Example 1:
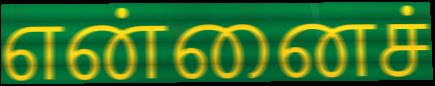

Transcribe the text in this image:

என்னைச்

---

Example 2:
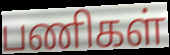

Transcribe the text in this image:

பணிகள்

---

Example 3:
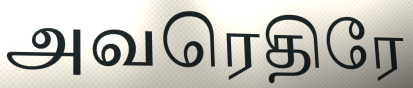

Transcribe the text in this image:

அவரெதிரே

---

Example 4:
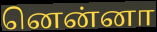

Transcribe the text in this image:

னென்னா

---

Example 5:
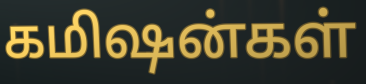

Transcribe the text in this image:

கமிஷன்கள்